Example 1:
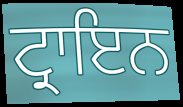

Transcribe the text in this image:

ਟ੍ਰਾਇਨ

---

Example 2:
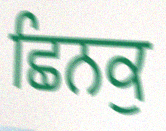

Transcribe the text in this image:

ਛਿਨਕੁ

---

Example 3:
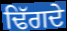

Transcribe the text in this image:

ਢਿੱਗਦੇ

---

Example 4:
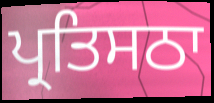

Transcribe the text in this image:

ਪ੍ਰਤਿਸਠਾ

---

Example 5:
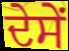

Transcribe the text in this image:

ਦੇਸੇਂ